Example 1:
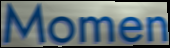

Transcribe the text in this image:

Momen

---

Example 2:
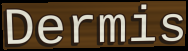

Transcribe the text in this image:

Dermis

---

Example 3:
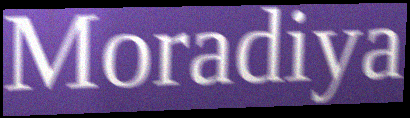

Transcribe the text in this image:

Moradiya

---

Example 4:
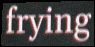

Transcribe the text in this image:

frying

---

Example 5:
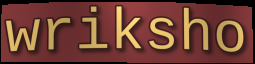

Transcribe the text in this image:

wriksho